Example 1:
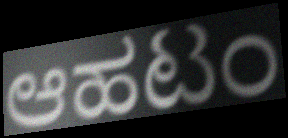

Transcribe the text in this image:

ಆಹಟಂ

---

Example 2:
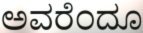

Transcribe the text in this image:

ಅವರೆಂದೂ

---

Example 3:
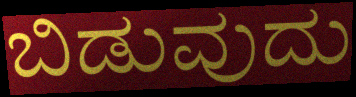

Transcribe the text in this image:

ಬಿಡುವುದು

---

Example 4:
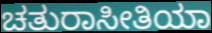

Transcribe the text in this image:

ಚತುರಾಸೀತಿಯಾ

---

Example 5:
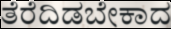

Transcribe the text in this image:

ತೆರೆದಿಡಬೇಕಾದ